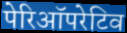
पेरिऑपरेटिव